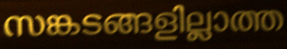
സങ്കടങ്ങളില്ലാത്ത